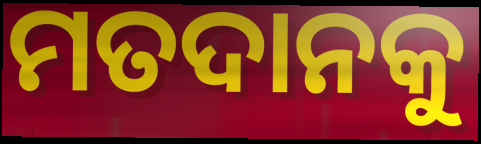
ମତଦାନକୁ